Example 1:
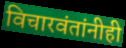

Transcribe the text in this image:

विचारवंतांनीही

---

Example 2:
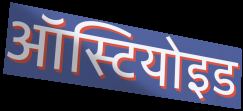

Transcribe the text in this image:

ऑस्टियोइड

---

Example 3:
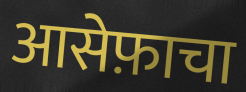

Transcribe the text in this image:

आसेफ़ाचा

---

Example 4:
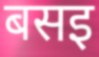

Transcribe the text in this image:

बसइ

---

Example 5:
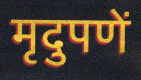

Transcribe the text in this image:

मृदुपणें